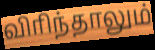
விரிந்தாலும்